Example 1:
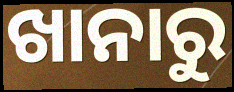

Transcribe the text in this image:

ଖାନାରୁ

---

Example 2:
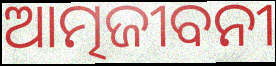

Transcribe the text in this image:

ଆତ୍ମଜୀବନୀ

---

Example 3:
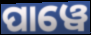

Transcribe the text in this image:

ପାୱେ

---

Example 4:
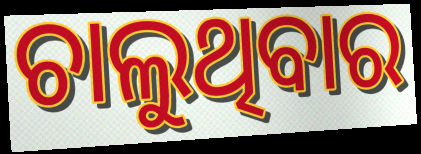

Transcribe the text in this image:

ଚାଲୁଥିବାର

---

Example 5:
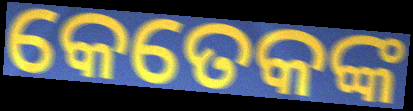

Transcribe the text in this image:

କେତେକଙ୍କ